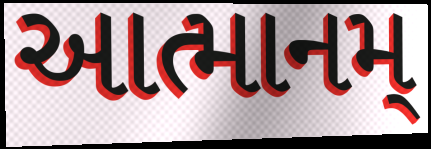
આત્માનમ્